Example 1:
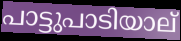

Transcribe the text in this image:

പാട്ടുപാടിയാല്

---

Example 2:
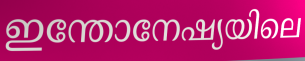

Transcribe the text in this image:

ഇന്തോനേഷ്യയിലെ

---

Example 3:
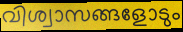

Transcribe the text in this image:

വിശ്വാസങ്ങളോടും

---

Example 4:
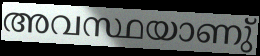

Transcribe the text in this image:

അവസ്ഥയാണു്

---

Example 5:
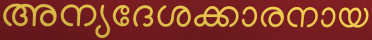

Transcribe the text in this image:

അന്യദേശക്കാരനായ